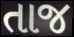
તાજ